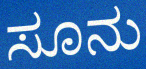
ಸೂನು